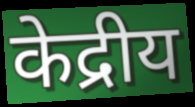
केद्रीय